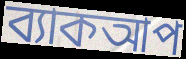
ব্যাকআপ